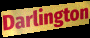
Darlington